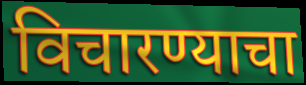
विचारण्याचा